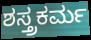
ಶಸ್ತ್ರಕರ್ಮ